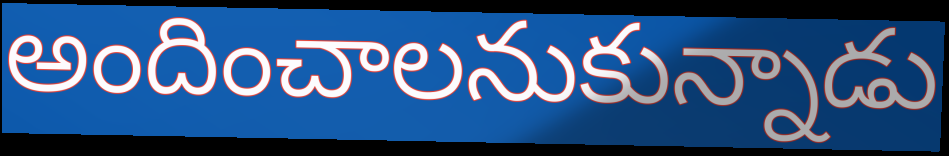
అందించాలనుకున్నాడు